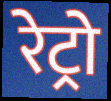
रेट्रो